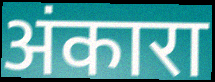
अंकारा